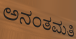
ಅನಂತಮತಿ